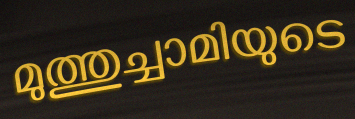
മുത്തുച്ചാമിയുടെ